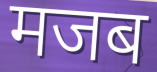
मजब